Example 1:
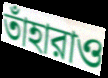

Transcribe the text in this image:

তাঁহারাও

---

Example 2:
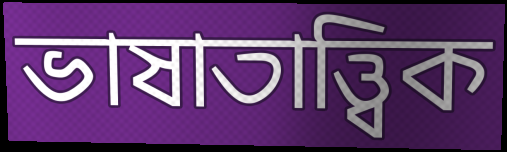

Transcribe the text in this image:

ভাষাতাত্ত্বিক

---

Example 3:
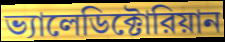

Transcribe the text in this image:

ভ্যালেডিক্টোরিয়ান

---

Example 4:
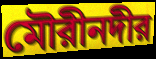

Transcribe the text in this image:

মৌরীনদীর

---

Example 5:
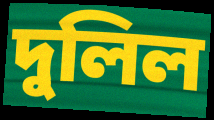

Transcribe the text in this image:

দুলিল